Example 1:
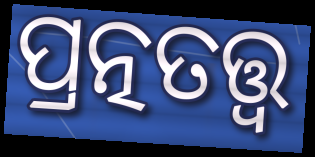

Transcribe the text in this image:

ପ୍ରତ୍ନତତ୍ତ୍ୱ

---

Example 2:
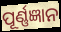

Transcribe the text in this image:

ପୂର୍ଣ୍ଣଜ୍ଞାନ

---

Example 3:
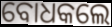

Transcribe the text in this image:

ବୋଧକଲେ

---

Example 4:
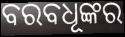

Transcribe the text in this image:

ବରବଧୂଙ୍କର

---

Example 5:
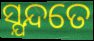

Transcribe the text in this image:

ସ୍ଯନ୍ଦତେ